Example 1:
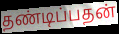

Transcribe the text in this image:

தண்டிப்பதன்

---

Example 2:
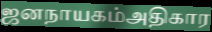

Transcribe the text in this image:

ஜனநாயகம்அதிகார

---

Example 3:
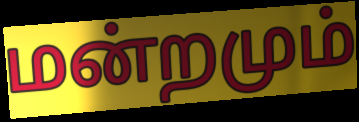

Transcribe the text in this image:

மன்றமும்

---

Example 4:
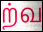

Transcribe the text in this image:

ற்வ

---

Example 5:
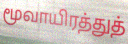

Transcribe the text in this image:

மூவாயிரத்துத்